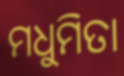
ମଧୁମିତା